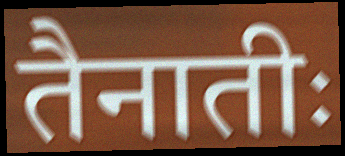
तैनातीः